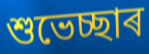
শুভেচ্ছাৰ